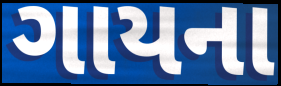
ગાયના